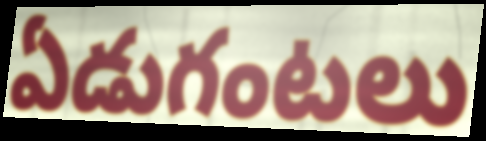
ఏడుగంటలు